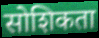
सोशिकता